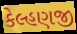
કેલ્હણજી